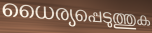
ധൈര്യപ്പെടുത്തുക